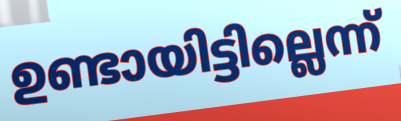
ഉണ്ടായിട്ടില്ലെന്ന്